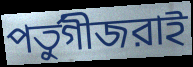
পর্তুগীজরাই